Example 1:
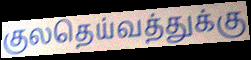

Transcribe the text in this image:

குலதெய்வத்துக்கு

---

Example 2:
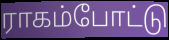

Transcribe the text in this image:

ராகம்போட்டு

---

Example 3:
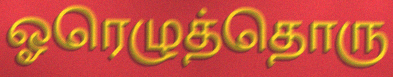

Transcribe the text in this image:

ஓரெழுத்தொரு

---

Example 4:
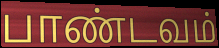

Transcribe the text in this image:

பாண்டவம்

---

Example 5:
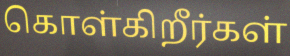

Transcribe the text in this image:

கொள்கிறீர்கள்